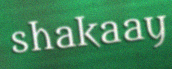
shakaay